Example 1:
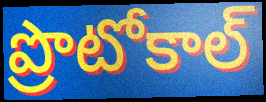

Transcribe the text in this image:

ప్రొటోకాల్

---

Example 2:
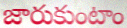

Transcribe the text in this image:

జారుకుంటాం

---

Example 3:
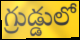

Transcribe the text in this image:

గ్రుడ్డులో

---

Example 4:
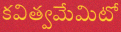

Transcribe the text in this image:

కవిత్వమేమిటో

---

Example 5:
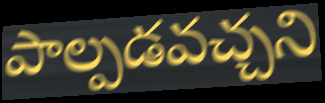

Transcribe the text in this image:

పాల్పడవచ్చని